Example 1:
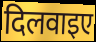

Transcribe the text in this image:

दिलवाइए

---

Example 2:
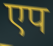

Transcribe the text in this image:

एप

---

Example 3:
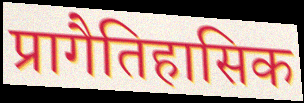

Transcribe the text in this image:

प्रागैतिहासिक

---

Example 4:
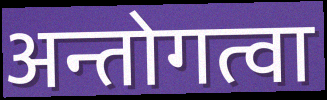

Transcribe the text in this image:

अन्तोगत्वा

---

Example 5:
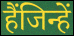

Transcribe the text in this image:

हैंजिन्हें